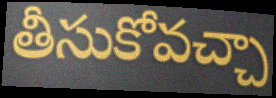
తీసుకోవచ్చా